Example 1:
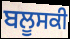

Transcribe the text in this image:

ਬਲੂਸਕੀ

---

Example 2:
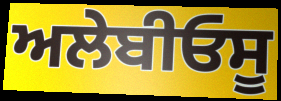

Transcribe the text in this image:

ਅਲੇਬੀਓਸੂ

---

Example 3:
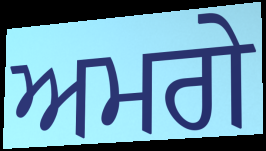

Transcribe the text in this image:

ਅਮਗੇ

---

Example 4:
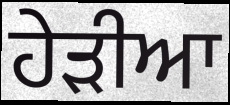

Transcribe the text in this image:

ਹੇੜੀਆ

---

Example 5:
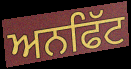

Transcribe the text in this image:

ਅਨਫਿੱਟ